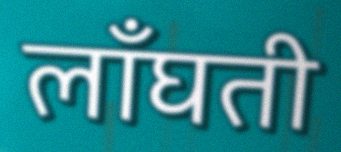
लाँघती